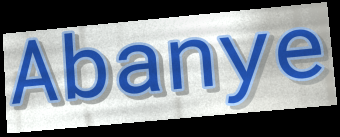
Abanye